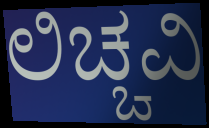
ಲಿಚ್ಚವಿ